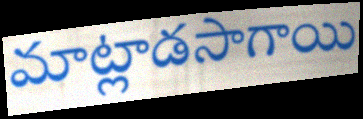
మాట్లాడసాగాయి